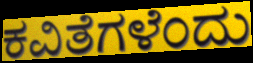
ಕವಿತೆಗಳೆಂದು